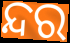
ନ୍ଦର